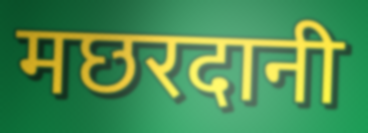
मछरदानी